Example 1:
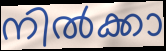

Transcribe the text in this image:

നിൽക്കാ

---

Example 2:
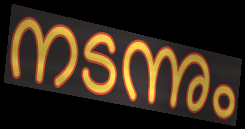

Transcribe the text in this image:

നടന്നും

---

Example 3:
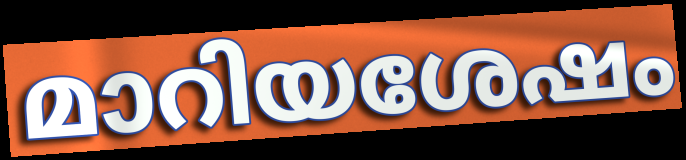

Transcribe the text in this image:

മാറിയശേഷം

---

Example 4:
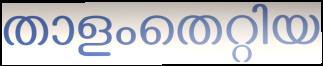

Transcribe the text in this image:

താളംതെറ്റിയ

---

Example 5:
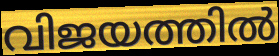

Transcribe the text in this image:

വിജയത്തിൽ